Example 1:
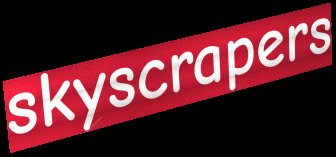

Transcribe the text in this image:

skyscrapers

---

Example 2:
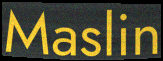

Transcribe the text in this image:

Maslin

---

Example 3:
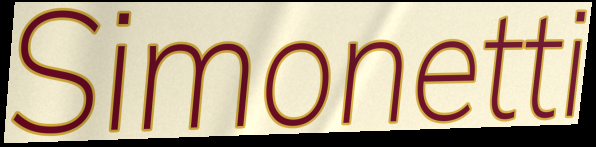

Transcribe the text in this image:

Simonetti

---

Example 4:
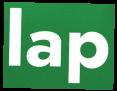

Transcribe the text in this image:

lap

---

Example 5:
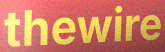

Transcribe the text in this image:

thewire